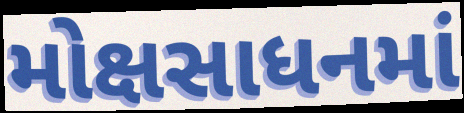
મોક્ષસાધનમાં